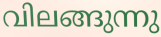
വിലങ്ങുന്നു